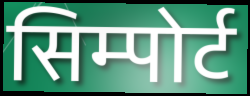
सिम्पोर्ट